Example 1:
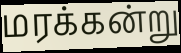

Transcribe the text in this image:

மரக்கன்று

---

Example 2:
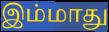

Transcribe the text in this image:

இம்மாது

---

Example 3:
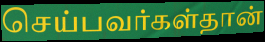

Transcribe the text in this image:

செய்பவர்கள்தான்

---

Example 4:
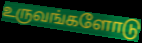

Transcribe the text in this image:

உருவங்களோடு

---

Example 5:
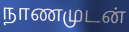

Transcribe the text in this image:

நாணமுடன்